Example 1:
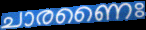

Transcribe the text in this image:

ചാരണൈഃ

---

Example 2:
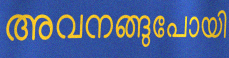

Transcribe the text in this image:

അവനങ്ങുപോയി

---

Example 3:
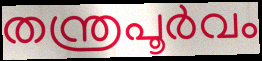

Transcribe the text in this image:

തന്ത്രപൂർവം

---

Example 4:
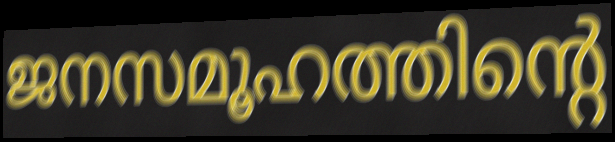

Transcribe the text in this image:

ജനസമൂഹത്തിന്റെ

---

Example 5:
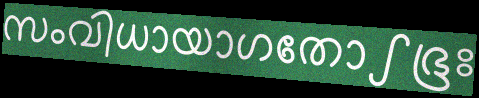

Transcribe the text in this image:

സംവിധായാഗതോഽഭൂഃ